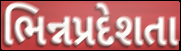
ભિન્નપ્રદેશતા